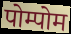
पोम्पोम